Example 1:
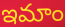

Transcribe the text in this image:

ఇమాం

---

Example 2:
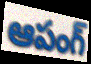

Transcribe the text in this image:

ఆపంగ్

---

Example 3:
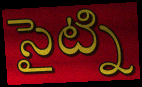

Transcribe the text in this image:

సైట్ని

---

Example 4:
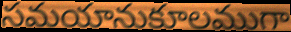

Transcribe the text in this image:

సమయానుకూలముగా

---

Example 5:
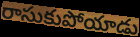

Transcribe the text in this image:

రాసుకుపోయాడు